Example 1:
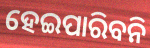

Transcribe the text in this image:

ହେଇପାରିବନି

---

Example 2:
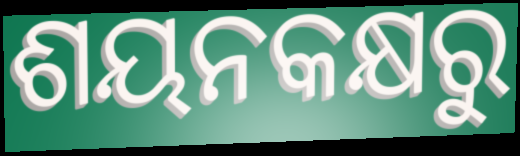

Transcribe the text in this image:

ଶୟନକକ୍ଷରୁ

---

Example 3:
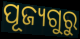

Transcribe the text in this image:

ପୂଜ୍ୟଗୁରୁ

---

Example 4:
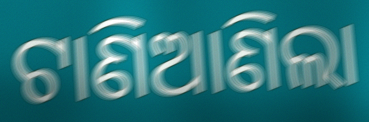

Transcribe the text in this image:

ଟାଣିଆଣିଲା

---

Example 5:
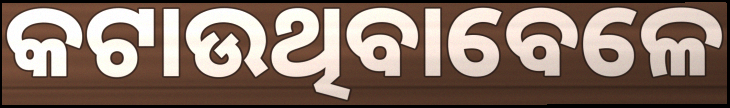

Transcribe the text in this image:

କଟାଉଥିବାବେଳେ